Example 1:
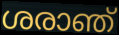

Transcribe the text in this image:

ശരാഞ്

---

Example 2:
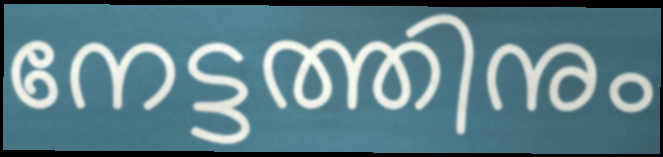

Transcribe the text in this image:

നേട്ടത്തിനും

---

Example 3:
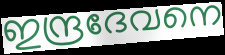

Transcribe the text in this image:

ഇന്ദ്രദേവനെ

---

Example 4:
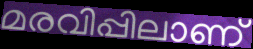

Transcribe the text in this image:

മരവിപ്പിലാണ്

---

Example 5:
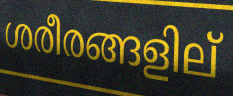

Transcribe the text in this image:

ശരീരങ്ങളില്